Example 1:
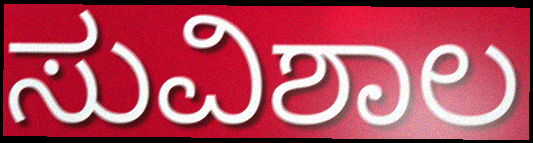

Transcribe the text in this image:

ಸುವಿಶಾಲ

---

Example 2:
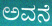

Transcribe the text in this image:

ಅವನೆ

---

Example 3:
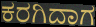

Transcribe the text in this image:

ಕರಗಿದಾಗ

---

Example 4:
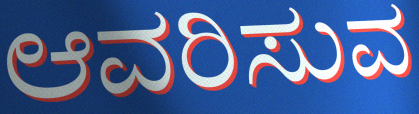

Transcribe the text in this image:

ಆವರಿಸುವ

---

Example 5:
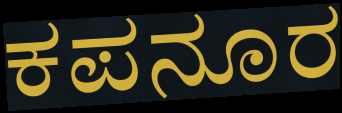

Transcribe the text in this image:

ಕಪನೂರ